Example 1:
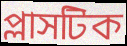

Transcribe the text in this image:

প্লাসটিক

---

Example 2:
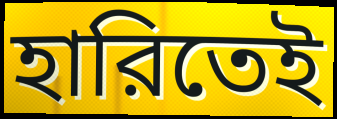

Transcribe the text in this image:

হারিতেই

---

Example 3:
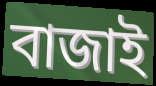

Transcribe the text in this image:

বাজাই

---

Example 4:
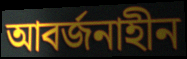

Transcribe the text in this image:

আবর্জনাহীন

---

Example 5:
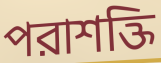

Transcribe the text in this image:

পরাশক্তি